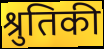
श्रुतिकी